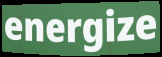
energize